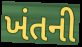
ખંતની